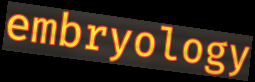
embryology